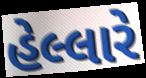
હેલ્લારે